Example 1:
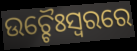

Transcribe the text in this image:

ଉଚ୍ଚୈଃସ୍ୱରରେ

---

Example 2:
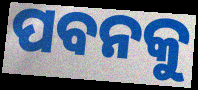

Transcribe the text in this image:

ପବନକୁ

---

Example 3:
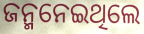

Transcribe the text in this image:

ଜନ୍ମନେଇଥିଲେ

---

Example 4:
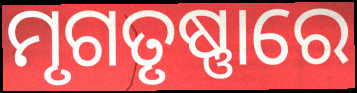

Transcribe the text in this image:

ମୃଗତୃଷ୍ଣାରେ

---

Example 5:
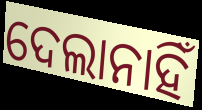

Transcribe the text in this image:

ଦେଲାନାହିଁ